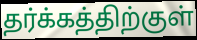
தர்க்கத்திற்குள்